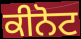
ਕੀਨੋਟ